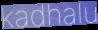
kadhalu